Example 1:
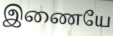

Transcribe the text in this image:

இணையே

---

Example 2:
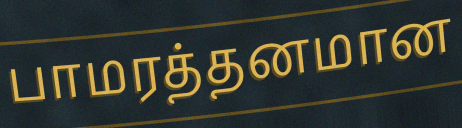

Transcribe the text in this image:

பாமரத்தனமான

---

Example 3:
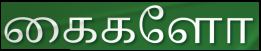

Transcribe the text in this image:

கைகளோ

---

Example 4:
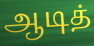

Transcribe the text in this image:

ஆடித்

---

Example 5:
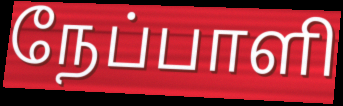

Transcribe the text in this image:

நேப்பாளி